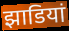
झाडियां